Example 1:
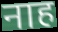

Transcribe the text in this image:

नाह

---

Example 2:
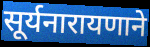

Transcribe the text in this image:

सूर्यनारायणाने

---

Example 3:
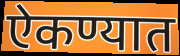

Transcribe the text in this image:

ऐकण्यात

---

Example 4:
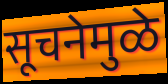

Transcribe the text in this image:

सूचनेमुळे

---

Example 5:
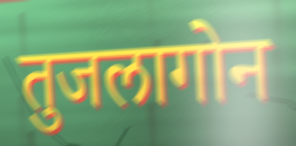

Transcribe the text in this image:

तुजलागोन